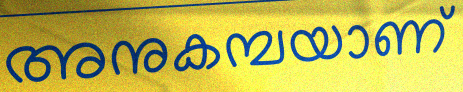
അനുകമ്പയാണ്